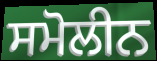
ਸਮੋਲੀਨ